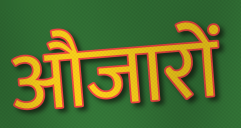
औजारों